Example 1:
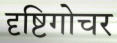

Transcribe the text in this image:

दृष्टिगोचर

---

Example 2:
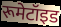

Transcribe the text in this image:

रूमेटॉइड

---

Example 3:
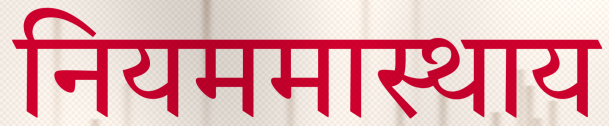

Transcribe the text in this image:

नियममास्थाय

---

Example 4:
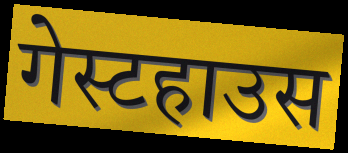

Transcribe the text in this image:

गेस्टहाउस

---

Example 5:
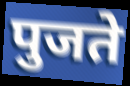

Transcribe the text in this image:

पुजते